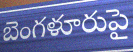
బెంగళూరుపై